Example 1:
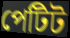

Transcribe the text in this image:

পেটিট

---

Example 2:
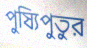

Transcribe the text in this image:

পুষ্যিপুতুর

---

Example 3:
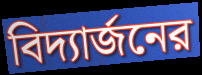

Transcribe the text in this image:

বিদ্যার্জনের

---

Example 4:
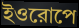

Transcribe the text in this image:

ইওরোপে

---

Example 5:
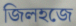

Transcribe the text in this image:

জিলহজে